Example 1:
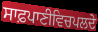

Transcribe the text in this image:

ਸਾਫ਼ਪਾਣੀਵਿਚਪਲਦੇ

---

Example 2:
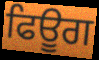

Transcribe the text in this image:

ਫਿਊਗ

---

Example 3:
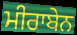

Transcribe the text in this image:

ਮੀਰਾਬੇਨ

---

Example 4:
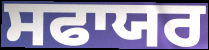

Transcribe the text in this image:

ਸਫਾਯਰ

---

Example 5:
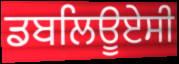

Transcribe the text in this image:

ਡਬਲਿਊਏਸੀ